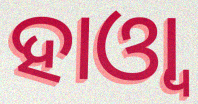
ହାଓ୍ୱା